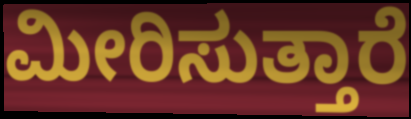
ಮೀರಿಸುತ್ತಾರೆ